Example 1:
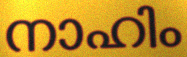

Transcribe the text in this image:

നാഹിം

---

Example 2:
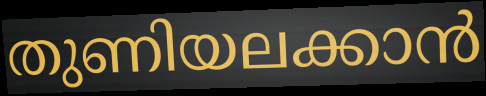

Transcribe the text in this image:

തുണിയലക്കാൻ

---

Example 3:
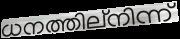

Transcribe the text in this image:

ധനത്തില്നിന്ന്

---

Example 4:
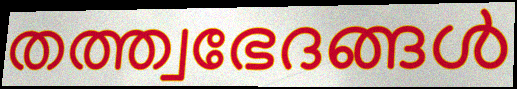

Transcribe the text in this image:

തത്ത്വഭേദങ്ങൾ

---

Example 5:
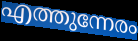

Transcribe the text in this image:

എത്തുന്നേരം